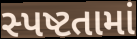
સ્પષ્ટતામાં